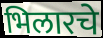
भिलारचे